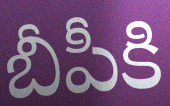
బీపీకి